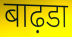
बाढ़डा